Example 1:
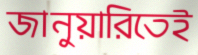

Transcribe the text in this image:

জানুয়ারিতেই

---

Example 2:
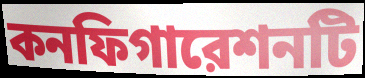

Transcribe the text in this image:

কনফিগারেশনটি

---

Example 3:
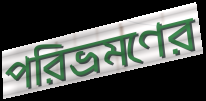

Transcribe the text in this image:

পরিভ্রমণের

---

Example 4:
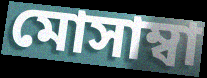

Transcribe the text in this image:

মোসাম্বা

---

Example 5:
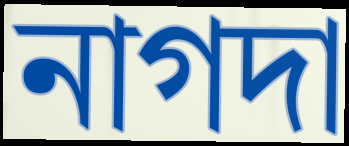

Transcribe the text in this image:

নাগদা